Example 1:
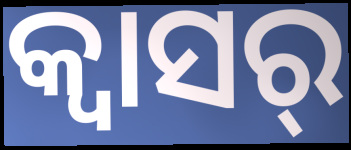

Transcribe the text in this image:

କ୍ୱାସର୍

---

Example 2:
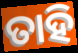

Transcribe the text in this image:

ତାହି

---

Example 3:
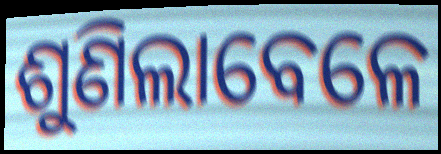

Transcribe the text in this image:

ଶୁଣିଲାବେଳେ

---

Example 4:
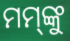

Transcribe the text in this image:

ମମ୍‌ଙ୍କୁ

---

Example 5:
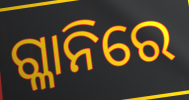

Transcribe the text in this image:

ଗ୍ଳାନିରେ